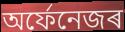
অৰ্ফেনেজৰ